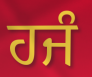
ਹਜੰ